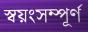
স্বয়ংসম্পূৰ্ণ